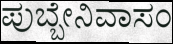
ಪುಬ್ಬೇನಿವಾಸಂ